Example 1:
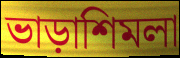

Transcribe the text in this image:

ভাড়াশিমলা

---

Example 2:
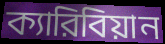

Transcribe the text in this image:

ক্যারিবিয়ান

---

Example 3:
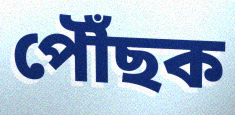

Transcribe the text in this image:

পৌঁছক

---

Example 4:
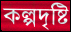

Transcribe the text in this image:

কল্পদৃষ্টি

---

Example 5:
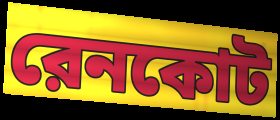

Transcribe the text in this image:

রেনকোট